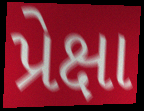
પ્રેક્ષા